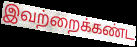
இவற்றைக்கண்ட